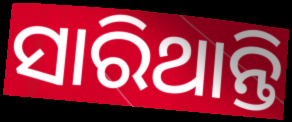
ସାରିଥାନ୍ତି